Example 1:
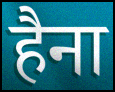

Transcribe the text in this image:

हैना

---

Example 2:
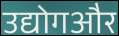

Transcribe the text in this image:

उद्योगऔर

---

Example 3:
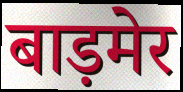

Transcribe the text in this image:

बाड़मेर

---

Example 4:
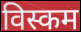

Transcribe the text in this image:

विस्कम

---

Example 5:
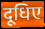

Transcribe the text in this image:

दूधिए